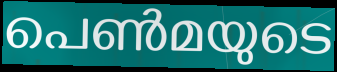
പെൺമയുടെ